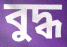
বুদ্ধ